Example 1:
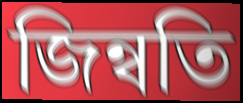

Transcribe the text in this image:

জিন্বতি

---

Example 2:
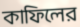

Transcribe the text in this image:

কাফিলের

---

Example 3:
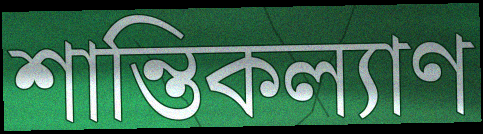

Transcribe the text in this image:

শান্তিকল্যাণ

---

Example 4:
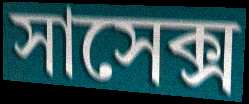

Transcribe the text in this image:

সাসেক্স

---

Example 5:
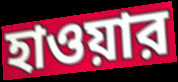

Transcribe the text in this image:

হাওয়ার